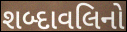
શબ્દાવલિનો